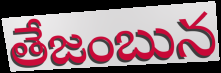
తేజంబున